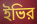
ইভির